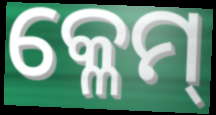
କ୍ଳେମ୍